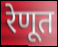
रेणूत